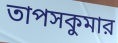
তাপসকুমার